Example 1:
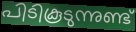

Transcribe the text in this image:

പിടികൂടുന്നുണ്ട്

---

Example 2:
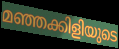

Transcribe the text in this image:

മഞ്ഞക്കിളിയുടെ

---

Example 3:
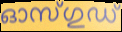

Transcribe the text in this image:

ഓസ്ഗുഡ്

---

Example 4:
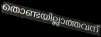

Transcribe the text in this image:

തൊണ്ടയില്ലാത്തവന്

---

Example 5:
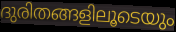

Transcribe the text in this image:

ദുരിതങ്ങളിലൂടെയും